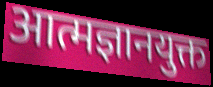
आत्मज्ञानयुक्त